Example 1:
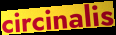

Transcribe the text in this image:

circinalis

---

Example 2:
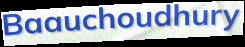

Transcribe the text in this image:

Baauchoudhury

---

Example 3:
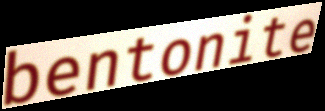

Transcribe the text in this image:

bentonite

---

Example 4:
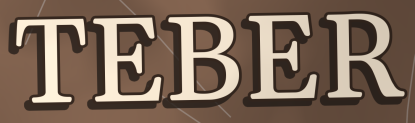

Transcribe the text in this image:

TEBER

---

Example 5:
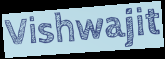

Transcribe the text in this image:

Vishwajit